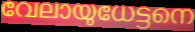
വേലായുധേട്ടനെ